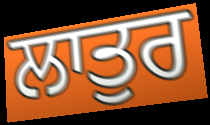
ਲਾਤੁਰ